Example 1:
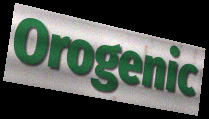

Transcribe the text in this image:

Orogenic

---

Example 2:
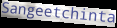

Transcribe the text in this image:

Sangeetchinta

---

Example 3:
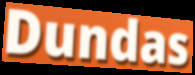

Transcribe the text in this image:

Dundas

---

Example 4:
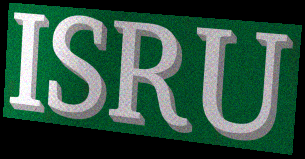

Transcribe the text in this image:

ISRU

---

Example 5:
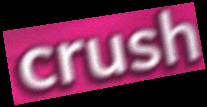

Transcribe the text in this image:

crush